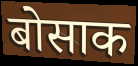
बोसाक